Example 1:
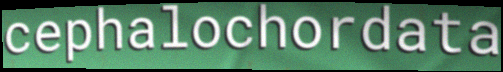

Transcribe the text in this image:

cephalochordata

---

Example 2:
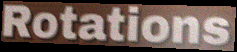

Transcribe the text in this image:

Rotations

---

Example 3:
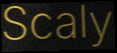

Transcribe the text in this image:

Scaly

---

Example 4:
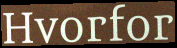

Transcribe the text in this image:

Hvorfor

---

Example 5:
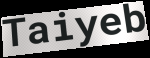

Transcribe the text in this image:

Taiyeb